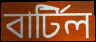
বার্টিল